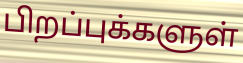
பிறப்புக்களுள்